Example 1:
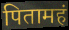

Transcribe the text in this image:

पितामहं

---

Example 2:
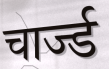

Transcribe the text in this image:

चार्ज्ड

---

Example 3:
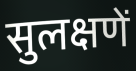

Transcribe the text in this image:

सुलक्षणें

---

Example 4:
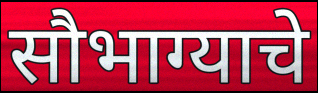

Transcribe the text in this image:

सौभाग्याचे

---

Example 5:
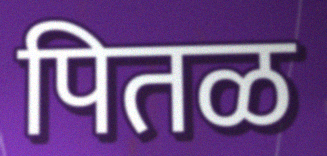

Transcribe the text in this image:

पितळ